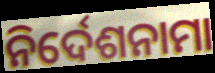
ନିର୍ଦେଶନାମା